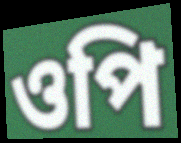
ওপি